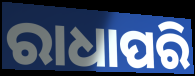
ରାଧାପରି